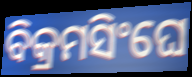
ବିକ୍ରମସିଂଘେ